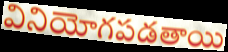
వినియోగపడతాయి